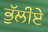
ਭੁੱਲੀਏ